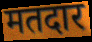
मतदार